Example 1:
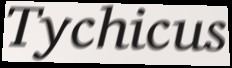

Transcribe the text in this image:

Tychicus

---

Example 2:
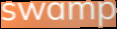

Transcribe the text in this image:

swamp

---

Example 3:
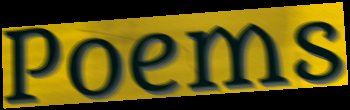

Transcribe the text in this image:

Poems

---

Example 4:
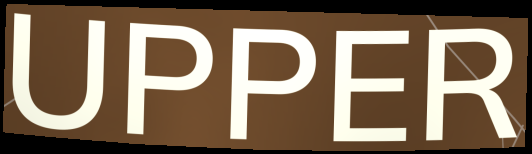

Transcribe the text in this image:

UPPER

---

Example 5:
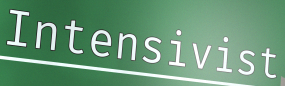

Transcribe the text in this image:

Intensivist